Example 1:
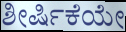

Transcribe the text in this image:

ಶೀರ್ಷಿಕೆಯೇ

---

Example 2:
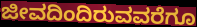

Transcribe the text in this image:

ಜೀವದಿಂದಿರುವವರೆಗೂ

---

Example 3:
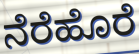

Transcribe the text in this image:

ನೆರೆಹೊರೆ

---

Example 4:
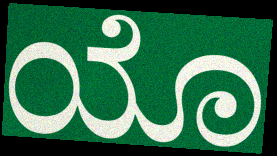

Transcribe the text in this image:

ಯೊ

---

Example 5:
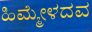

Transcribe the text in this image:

ಹಿಮ್ಮೇಳದವ